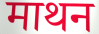
माथन